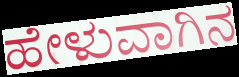
ಹೇಳುವಾಗಿನ